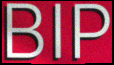
BIP